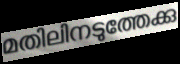
മതിലിനടുത്തേക്കു